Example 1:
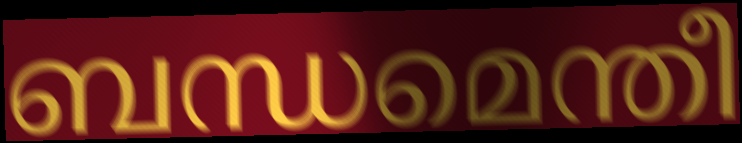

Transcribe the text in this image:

ബന്ധമെന്തീ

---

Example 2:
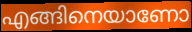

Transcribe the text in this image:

എങ്ങിനെയാണോ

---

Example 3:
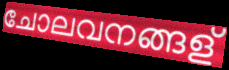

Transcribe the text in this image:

ചോലവനങ്ങള്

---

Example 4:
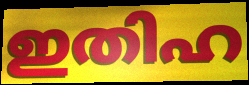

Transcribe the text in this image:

ഇതിഹ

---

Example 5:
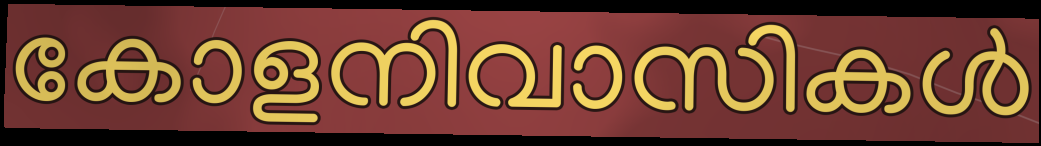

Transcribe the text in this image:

കോളനിവാസികൾ